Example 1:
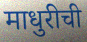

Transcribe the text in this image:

माधुरीची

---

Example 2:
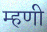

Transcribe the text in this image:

म्हणी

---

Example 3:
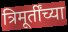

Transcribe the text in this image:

त्रिमूर्तींच्या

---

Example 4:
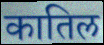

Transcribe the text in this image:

कातिल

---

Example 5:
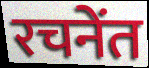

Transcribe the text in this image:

रचनेंत